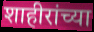
शाहीरांच्या